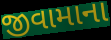
જીવામાના